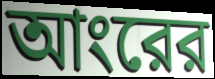
আংরের